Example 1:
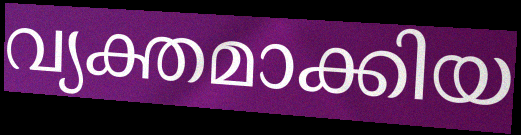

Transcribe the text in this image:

വ്യക്തമാക്കിയ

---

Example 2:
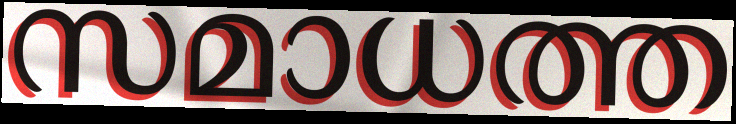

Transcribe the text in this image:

സമാധത്ത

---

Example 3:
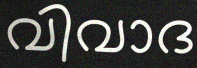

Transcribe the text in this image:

വിവാദ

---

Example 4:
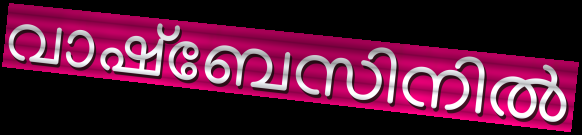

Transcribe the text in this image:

വാഷ്ബേസിനിൽ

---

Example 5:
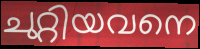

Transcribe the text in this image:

ചുറ്റിയവനെ